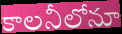
కాలనీలోనూ